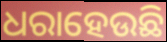
ଧରାହେଉଛି